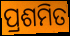
ପ୍ରଶମିତ